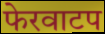
फेरवाटप